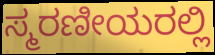
ಸ್ಮರಣೀಯರಲ್ಲಿ